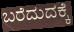
ಬರೆದುದಕ್ಕೆ